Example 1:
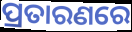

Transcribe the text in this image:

ପ୍ରତାରଣରେ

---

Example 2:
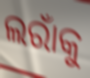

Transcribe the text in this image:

ଲରାଁକୁ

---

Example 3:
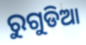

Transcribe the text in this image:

ରୁଗୁଡିଆ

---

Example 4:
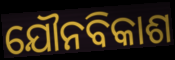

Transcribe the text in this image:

ଯୌନବିକାଶ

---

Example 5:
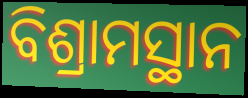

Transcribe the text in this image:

ବିଶ୍ରାମସ୍ଥାନ